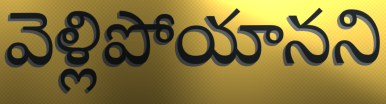
వెళ్లిపోయానని